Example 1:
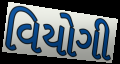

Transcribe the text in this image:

વિયોગી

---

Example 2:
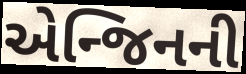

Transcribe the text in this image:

એન્જિનની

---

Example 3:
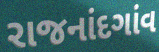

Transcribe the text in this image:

રાજનાંદગાંવ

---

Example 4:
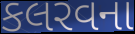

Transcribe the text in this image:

કલરવના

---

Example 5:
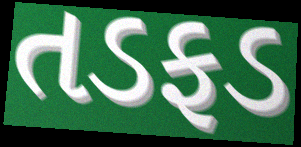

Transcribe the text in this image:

તડફડ